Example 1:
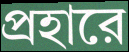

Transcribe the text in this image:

প্রহারে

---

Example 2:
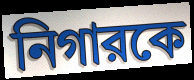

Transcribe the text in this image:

নিগারকে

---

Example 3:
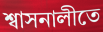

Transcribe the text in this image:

শ্বাসনালীতে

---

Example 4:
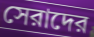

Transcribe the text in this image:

সেরাদের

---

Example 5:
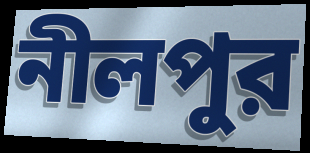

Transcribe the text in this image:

নীলপুর